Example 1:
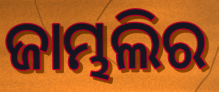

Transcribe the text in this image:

ଜାମ୍ଭଲିର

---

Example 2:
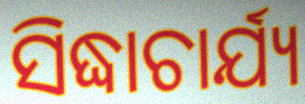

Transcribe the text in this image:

ସିଦ୍ଧାଚାର୍ଯ୍ୟ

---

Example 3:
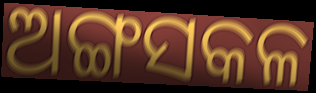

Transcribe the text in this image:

ଅଙ୍ଗସକଳ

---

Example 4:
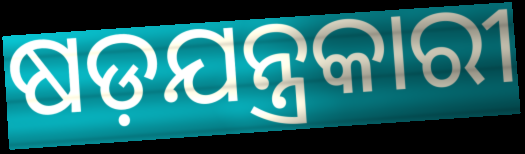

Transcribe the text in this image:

ଷଡ଼ଯନ୍ତ୍ରକାରୀ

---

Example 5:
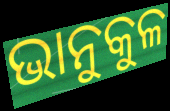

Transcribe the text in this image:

ଭାନୁକୁଳ